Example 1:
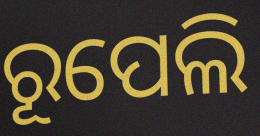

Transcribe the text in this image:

ରୂପେଲି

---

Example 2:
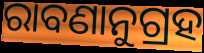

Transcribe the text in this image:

ରାବଣାନୁଗ୍ରହ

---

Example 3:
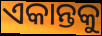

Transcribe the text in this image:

ଏକାନ୍ତକୁ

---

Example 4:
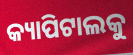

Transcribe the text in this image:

କ୍ୟାପିଟାଲକୁ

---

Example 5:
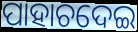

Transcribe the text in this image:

ପାହାଚଦେଇ